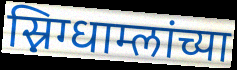
स्निग्धाम्लांच्या